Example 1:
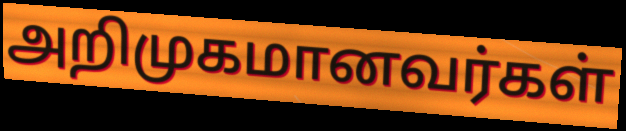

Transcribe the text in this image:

அறிமுகமானவர்கள்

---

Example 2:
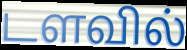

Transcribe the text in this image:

டளவில்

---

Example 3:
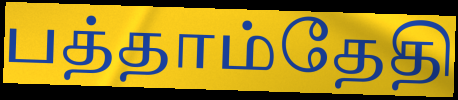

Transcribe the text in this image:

பத்தாம்தேதி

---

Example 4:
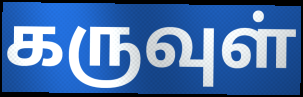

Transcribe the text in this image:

கருவுள்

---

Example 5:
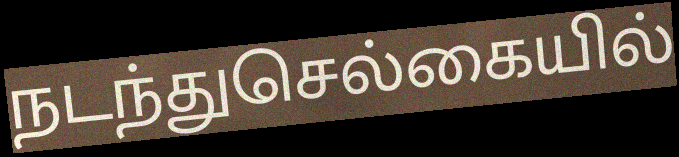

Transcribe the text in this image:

நடந்துசெல்கையில்